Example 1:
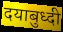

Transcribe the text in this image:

दयाबुध्दी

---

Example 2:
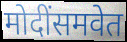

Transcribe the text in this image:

मोदींसमवेत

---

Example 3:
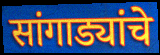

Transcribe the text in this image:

सांगाड्यांचे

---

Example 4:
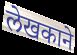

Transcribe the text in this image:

लेखकाने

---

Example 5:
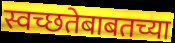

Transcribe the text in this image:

स्वच्छतेबाबतच्या